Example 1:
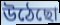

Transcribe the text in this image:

উঠেছো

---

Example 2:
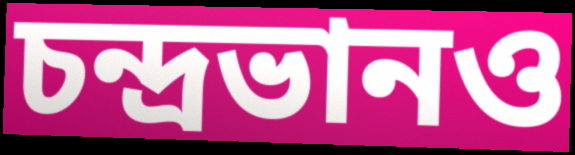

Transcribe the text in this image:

চন্দ্রভানও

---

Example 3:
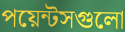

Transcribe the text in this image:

পয়েন্টসগুলো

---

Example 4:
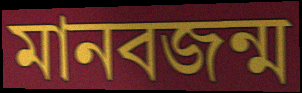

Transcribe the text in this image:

মানবজন্ম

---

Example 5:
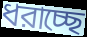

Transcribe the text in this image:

ধরাচ্ছে